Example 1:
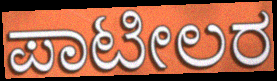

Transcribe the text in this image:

ಪಾಟೀಲರ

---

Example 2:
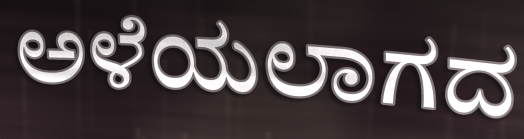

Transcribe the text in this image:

ಅಳೆಯಲಾಗದ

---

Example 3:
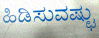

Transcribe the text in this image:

ಹಿಡಿಸುವಷ್ಟು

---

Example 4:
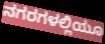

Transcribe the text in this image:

ನಗರಗಳಲ್ಲಿಯೂ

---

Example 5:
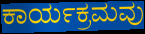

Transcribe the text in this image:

ಕಾರ್ಯಕ್ರಮವು